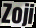
Zoji